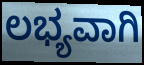
ಲಭ್ಯವಾಗಿ